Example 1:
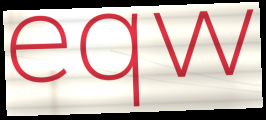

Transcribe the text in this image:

eqw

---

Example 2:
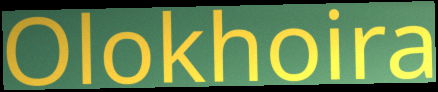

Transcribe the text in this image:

Olokhoira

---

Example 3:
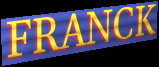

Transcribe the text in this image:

FRANCK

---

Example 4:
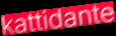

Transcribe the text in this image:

kattidante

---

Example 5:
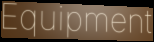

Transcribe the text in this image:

Equipment